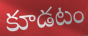
కూడటం